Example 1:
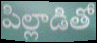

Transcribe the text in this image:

పిల్లాడితో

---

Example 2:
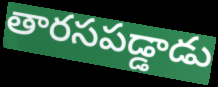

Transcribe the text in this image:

తారసపడ్డాడు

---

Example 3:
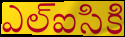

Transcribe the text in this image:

ఎల్ఐసికి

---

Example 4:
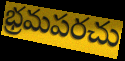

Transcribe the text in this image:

భ్రమపరచు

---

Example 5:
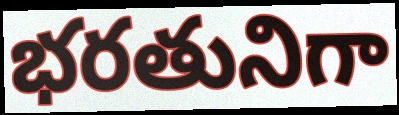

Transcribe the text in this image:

భరతునిగా